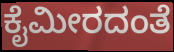
ಕೈಮೀರದಂತೆ